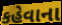
કહેવાના